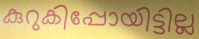
കുറുകിപ്പോയിട്ടില്ല